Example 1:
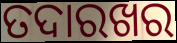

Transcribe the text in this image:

ତଦାରଖର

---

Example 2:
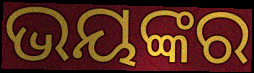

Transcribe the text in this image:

ଭୟଙ୍କର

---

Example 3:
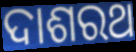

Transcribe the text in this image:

ଦାଶରଥ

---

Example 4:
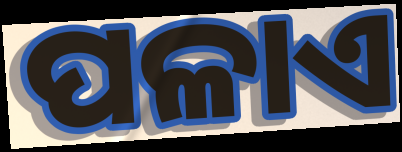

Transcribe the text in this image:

ପଳାଏ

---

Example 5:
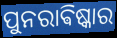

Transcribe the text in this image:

ପୁନରାଵିଷ୍କାର